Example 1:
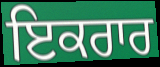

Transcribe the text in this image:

ਇਕਰਾਰ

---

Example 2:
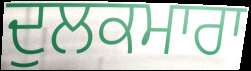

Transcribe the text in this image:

ਦੁਲਕਮਾਰਾ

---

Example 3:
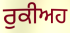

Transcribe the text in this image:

ਰੁਕੀਅਹ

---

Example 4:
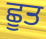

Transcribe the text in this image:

ਛੂਤ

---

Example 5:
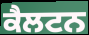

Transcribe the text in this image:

ਕੈਲਟਨ